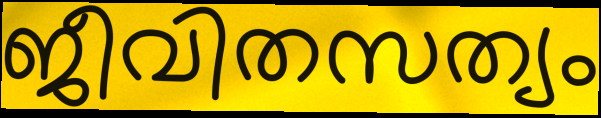
ജീവിതസത്യം